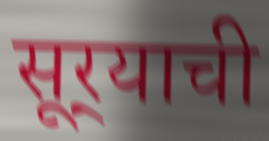
सूर्याची